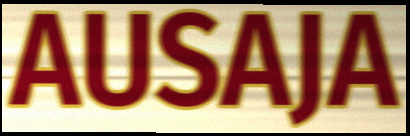
AUSAJA